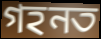
গহনত